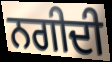
ਨਗੀਦੀ